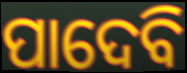
ପାଦେବି